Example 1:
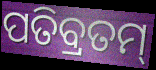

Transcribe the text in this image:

ପତିବ୍ରତମ୍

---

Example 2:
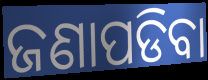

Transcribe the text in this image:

ଜଣାପଡିବା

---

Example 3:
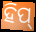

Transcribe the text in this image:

ହିପ୍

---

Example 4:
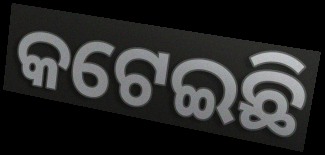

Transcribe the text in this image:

କଟେଇଛି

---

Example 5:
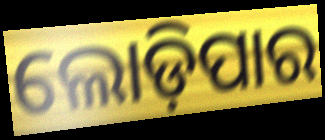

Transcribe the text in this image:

ଲୋଡ଼ିପାର